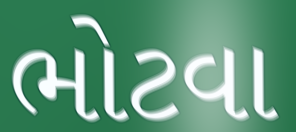
ભોટવા